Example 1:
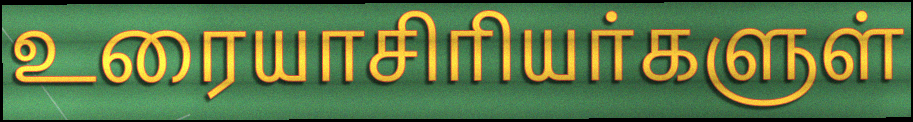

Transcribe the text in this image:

உரையாசிரியர்களுள்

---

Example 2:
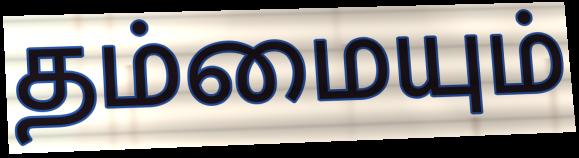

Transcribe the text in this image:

தம்மையும்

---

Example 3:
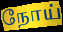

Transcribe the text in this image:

நோய்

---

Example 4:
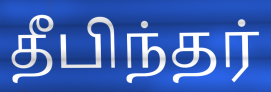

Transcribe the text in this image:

தீபிந்தர்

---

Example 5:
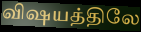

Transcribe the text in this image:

விஷயத்திலே